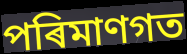
পৰিমাণগত